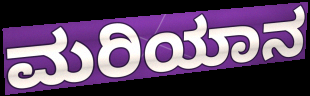
ಮರಿಯಾನ